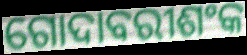
ଗୋଦାବରୀଶଂକ